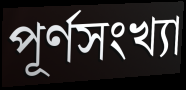
পূর্ণসংখ্যা